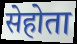
सेहोता